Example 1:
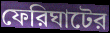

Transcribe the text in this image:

ফেরিঘাটের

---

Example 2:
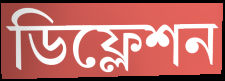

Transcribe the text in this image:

ডিফ্লেশন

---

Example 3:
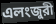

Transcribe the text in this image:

এলংজুরী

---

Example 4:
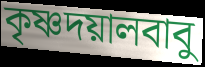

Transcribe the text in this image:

কৃষ্ণদয়ালবাবু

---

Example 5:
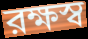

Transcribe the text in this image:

রক্ষস্ব